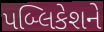
પબ્લિકેશને